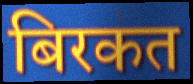
बिरकत